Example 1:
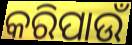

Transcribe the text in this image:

କରିପାଉଁ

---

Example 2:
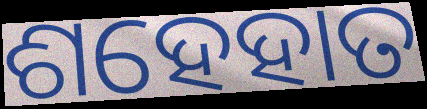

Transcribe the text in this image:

ଶହେହାତ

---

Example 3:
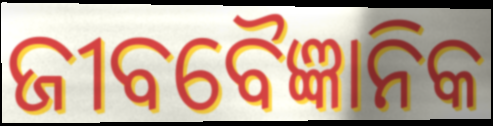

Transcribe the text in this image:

ଜୀବବୈଜ୍ଞାନିକ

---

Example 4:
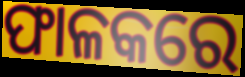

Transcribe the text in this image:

ଫାଳକରେ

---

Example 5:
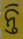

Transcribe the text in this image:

ନ୍ତି